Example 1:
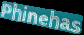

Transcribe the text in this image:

Phinehas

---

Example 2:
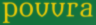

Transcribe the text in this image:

pouura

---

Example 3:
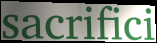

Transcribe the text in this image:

sacrifici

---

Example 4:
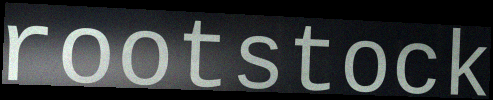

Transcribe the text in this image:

rootstock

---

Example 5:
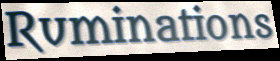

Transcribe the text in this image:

Ruminations